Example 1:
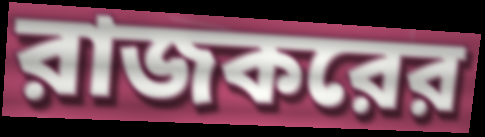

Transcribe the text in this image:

রাজকরের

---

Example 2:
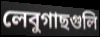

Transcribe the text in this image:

লেবুগাছগুলি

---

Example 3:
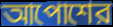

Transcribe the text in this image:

আপোশের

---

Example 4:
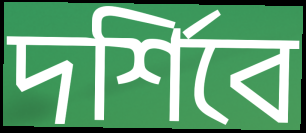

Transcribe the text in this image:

দর্শিবে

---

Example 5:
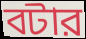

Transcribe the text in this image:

বটার